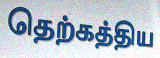
தெற்கத்திய